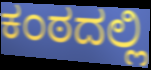
ಕಂಠದಲ್ಲಿ